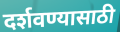
दर्शवण्यासाठी